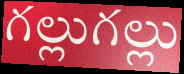
గల్లుగల్లు